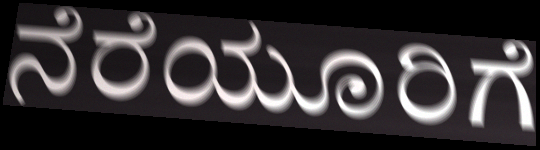
ನೆರೆಯೂರಿಗೆ